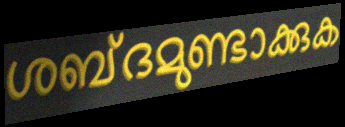
ശബ്ദമുണ്ടാക്കുക